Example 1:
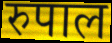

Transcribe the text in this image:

रुपाल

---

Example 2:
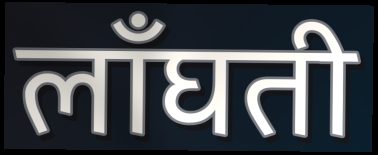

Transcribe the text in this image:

लाँघती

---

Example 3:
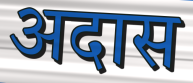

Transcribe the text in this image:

अदास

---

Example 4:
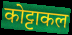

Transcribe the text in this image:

कोट्टाकल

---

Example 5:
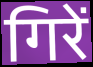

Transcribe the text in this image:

गिरें